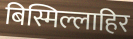
बिस्मिल्लाहिर